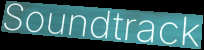
Soundtrack